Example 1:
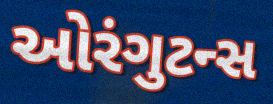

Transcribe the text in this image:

ઓરંગુટન્સ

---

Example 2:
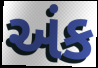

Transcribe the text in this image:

અંક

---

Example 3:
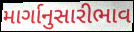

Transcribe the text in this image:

માર્ગાનુસારીભાવ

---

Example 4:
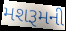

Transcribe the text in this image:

મશરૂમની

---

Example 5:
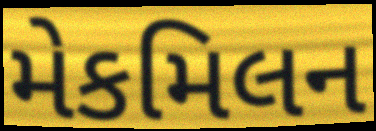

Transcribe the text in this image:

મેકમિલન